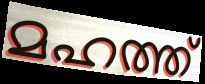
മഹത്ത്